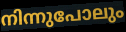
നിന്നുപോലും